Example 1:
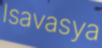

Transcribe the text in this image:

Isavasya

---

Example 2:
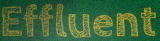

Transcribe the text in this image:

Effluent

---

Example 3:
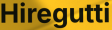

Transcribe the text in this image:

Hiregutti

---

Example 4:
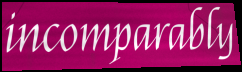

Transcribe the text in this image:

incomparably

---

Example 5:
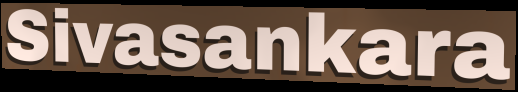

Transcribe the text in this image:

Sivasankara